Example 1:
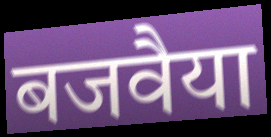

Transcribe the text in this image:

बजवैया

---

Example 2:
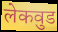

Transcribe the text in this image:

लेकवुड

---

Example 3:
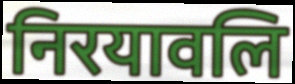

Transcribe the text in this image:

निरयावलि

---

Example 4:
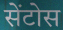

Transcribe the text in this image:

सेंटोस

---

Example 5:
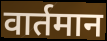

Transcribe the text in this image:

वार्तमान